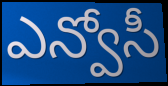
ఎన్వోసీ